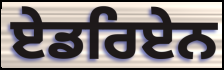
ਏਡਰਿਏਨ